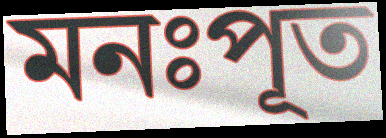
মনঃপূত